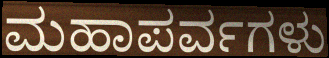
ಮಹಾಪರ್ವಗಳು